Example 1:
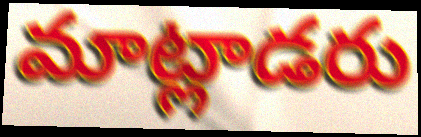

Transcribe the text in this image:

మాట్లాడరు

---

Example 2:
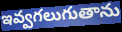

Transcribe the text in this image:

ఇవ్వగలుగుతాను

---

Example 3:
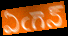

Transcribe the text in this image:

ఏఁగెన్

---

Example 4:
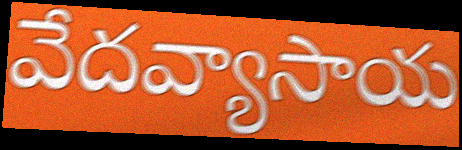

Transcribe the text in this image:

వేదవ్యాసాయ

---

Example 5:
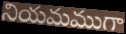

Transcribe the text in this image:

నియమముగా